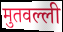
मुतवल्ली